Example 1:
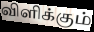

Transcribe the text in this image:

விளிக்கும்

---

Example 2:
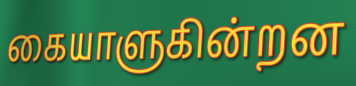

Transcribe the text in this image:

கையாளுகின்றன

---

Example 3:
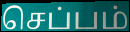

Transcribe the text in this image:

செப்பம்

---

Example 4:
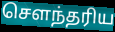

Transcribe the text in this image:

சௌந்தரிய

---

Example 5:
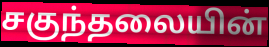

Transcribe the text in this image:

சகுந்தலையின்